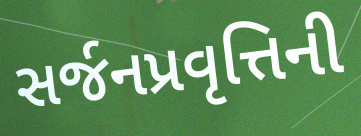
સર્જનપ્રવૃત્તિની